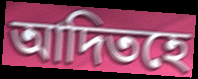
আদিতহে